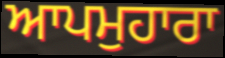
ਆਪਮੁਹਾਰਾ